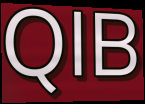
QIB